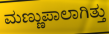
ಮಣ್ಣುಪಾಲಾಗಿತ್ತು